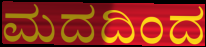
ಮದದಿಂದ